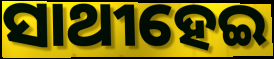
ସାଥୀହେଇ